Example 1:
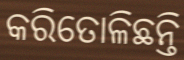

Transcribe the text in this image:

କରିତୋଳିଛନ୍ତି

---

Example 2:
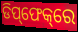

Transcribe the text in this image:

ଡିପ୍‌ଫେକ୍‌ରେ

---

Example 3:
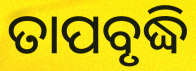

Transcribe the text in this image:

ତାପବୃଦ୍ଧି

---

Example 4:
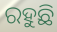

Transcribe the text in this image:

ରହୁଛି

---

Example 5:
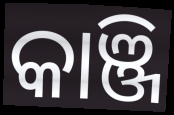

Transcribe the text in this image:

କାଞ୍ଜି